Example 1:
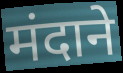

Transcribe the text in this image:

मंदाने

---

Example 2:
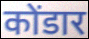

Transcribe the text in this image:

कोंडार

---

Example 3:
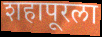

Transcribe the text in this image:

शहापूरला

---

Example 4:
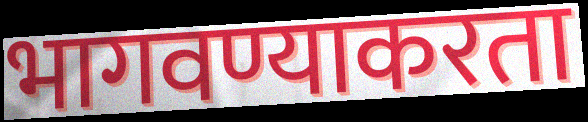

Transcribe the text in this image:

भागवण्याकरता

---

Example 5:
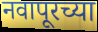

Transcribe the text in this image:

नवापूरच्या